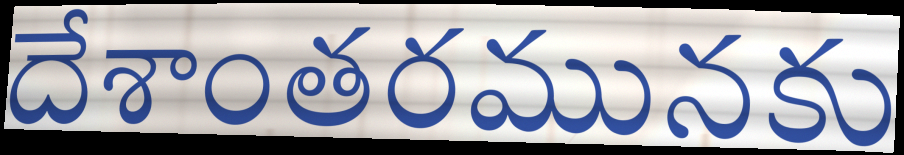
దేశాంతరమునకు